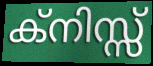
ക്നിസ്സ്